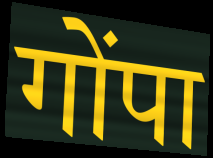
गोंपा